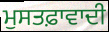
ਮੁਸਤਫ਼ਾਵਾਦੀ